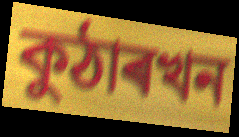
কুঠাৰখন